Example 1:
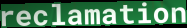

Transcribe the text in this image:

reclamation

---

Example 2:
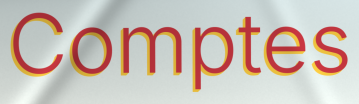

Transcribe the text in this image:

Comptes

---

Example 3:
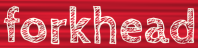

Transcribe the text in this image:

forkhead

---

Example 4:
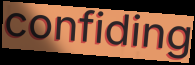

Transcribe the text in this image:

confiding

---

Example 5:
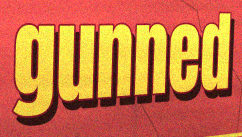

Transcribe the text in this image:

gunned